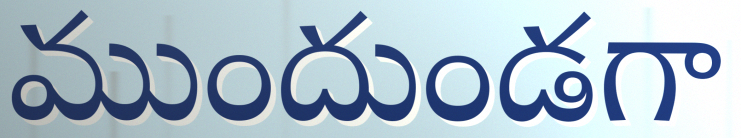
ముందుండగా